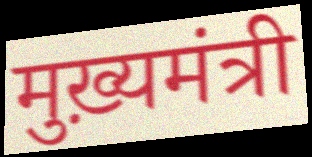
मुख़्यमंत्री